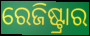
ରେଜିଷ୍ଟ୍ରାର